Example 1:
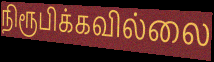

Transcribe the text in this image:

நிரூபிக்கவில்லை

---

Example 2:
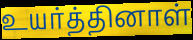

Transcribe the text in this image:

உயர்த்தினாள்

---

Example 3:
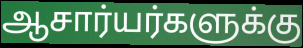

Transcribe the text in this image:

ஆசார்யர்களுக்கு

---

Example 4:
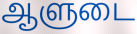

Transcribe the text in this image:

ஆளுடை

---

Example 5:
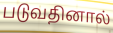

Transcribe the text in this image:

படுவதினால்